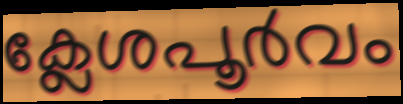
ക്ലേശപൂർവം